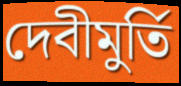
দেবীমুর্তি